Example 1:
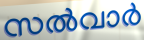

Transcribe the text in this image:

സൽവാർ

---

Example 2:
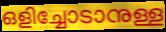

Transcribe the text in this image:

ഒളിച്ചോടാനുള്ള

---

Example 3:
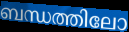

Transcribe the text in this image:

ബന്ധത്തിലോ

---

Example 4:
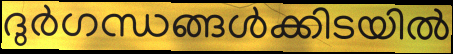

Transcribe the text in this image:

ദുർഗന്ധങ്ങൾക്കിടയിൽ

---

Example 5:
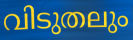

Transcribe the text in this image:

വിടുതലും